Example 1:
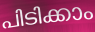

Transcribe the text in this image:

പിടിക്കാം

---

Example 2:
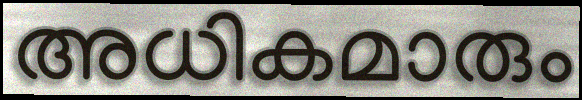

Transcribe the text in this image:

അധികമാരും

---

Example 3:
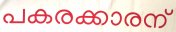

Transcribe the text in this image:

പകരക്കാരന്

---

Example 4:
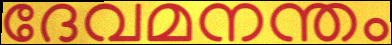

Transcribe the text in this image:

ദേവമനന്തം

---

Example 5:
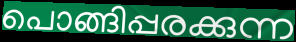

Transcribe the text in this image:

പൊങ്ങിപ്പരക്കുന്ന